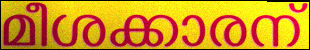
മീശക്കാരന്